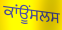
ਕਾਂਊਂਸਲਸ